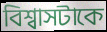
বিশ্বাসটাকে